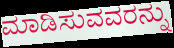
ಮಾಡಿಸುವವರನ್ನು